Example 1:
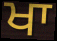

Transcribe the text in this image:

ਖਾ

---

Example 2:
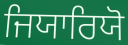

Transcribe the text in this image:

ਜਿਯਾਰਿਯੋ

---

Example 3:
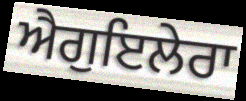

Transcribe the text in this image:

ਐਗੁਇਲੇਰਾ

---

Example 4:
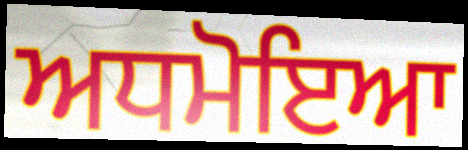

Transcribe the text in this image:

ਅਧਮੋਇਆ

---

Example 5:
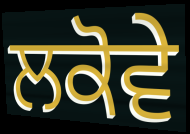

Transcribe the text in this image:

ਲਕੋਵੇ